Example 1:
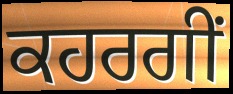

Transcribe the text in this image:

ਕਹਰਗੀਂ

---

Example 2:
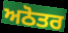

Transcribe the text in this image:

ਅਠੋਤਰ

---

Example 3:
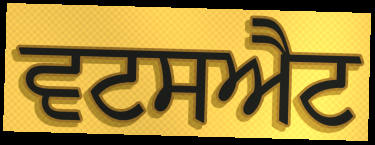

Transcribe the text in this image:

ਵਟਸਐਟ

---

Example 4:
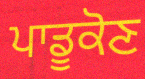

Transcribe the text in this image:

ਪਾਡੂਕੋਣ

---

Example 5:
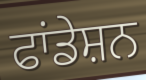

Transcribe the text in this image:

ਫਾਂਡੇਸ਼ਨ